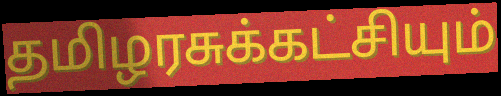
தமிழரசுக்கட்சியும்